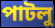
পাটলু